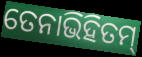
ତେନାଭିହିତମ୍